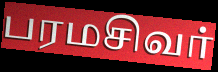
பரமசிவர்